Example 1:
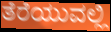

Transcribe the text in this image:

ತೆರೆಯುವಲ್ಲಿ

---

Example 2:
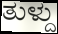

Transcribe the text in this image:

ತುಳ್ದು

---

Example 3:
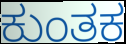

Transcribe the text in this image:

ಕುಂತಕ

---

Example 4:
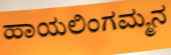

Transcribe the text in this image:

ಹಾಯಲಿಂಗಮ್ಮನ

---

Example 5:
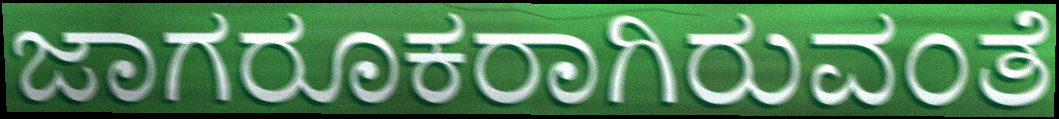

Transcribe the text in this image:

ಜಾಗರೂಕರಾಗಿರುವಂತೆ